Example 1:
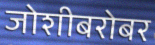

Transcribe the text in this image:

जोशीबरोबर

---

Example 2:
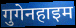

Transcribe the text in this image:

गुगेनहाइम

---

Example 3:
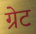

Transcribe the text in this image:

ग्रेट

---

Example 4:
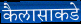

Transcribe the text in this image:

कैलासाकडे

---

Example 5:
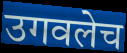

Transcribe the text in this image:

उगवलेच